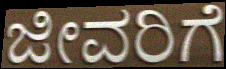
ಜೀವರಿಗೆ